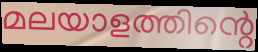
മലയാളത്തിന്റെ